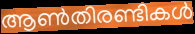
ആൺതിരണ്ടികൾ